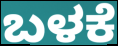
ಬಳಕೆ